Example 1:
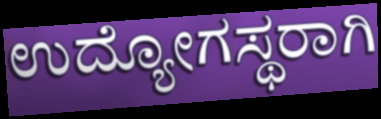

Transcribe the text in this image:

ಉದ್ಯೋಗಸ್ಥರಾಗಿ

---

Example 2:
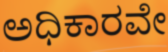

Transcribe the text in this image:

ಅಧಿಕಾರವೇ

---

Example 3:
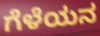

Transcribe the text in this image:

ಗೆಳೆಯನ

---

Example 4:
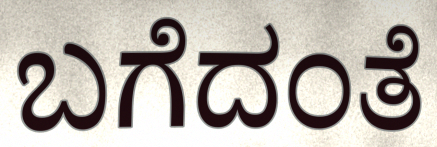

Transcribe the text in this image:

ಬಗೆದಂತೆ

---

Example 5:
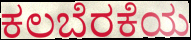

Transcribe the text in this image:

ಕಲಬೆರಕೆಯ